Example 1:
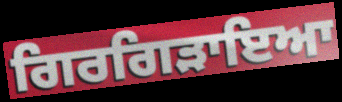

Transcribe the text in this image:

ਗਿਰਗਿੜਾਇਆ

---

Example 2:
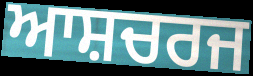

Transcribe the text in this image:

ਆਸ਼ਚਰਜ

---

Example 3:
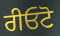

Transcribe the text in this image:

ਰੀਓਟੋ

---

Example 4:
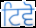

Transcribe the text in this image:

ਟਿਵੋ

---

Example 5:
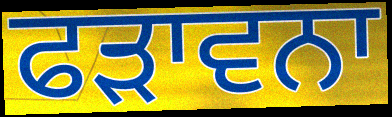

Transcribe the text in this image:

ਫੜਾਵਨਾ